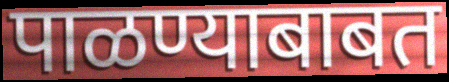
पाळण्याबाबत